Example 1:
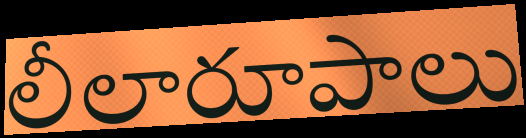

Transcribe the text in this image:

లీలారూపాలు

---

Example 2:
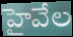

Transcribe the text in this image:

హైవేల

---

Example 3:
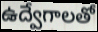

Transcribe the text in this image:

ఉద్వేగాలతో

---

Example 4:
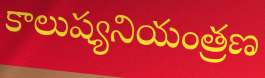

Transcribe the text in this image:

కాలుష్యనియంత్రణ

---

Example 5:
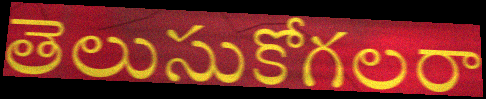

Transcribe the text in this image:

తెలుసుకోగలరా